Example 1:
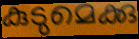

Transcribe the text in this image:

കുടുമെക്കു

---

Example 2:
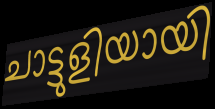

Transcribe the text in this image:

ചാട്ടുളിയായി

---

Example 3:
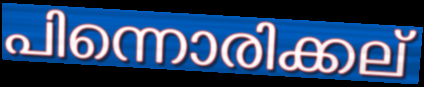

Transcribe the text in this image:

പിന്നൊരിക്കല്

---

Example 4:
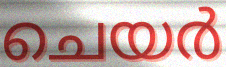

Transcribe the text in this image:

ചെയർ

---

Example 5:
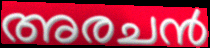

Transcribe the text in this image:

അരചൻ